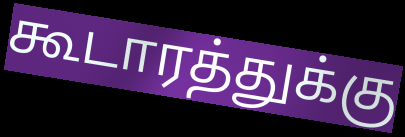
கூடாரத்துக்கு